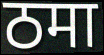
ठमा